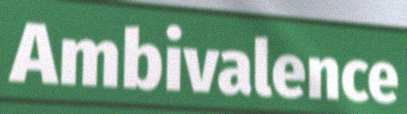
Ambivalence